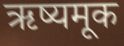
ऋष्यमूक